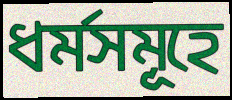
ধর্মসমূহে